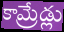
కామ్రేడ్లు